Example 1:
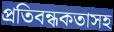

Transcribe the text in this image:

প্রতিবন্ধকতাসহ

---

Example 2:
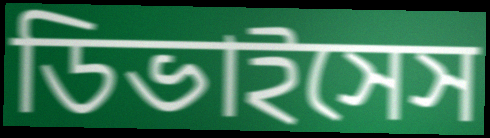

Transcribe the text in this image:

ডিভাইসেস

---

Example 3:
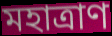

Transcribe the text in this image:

মহাত্রাণ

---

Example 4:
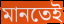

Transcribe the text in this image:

মানতেই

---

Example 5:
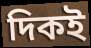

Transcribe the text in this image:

দিকই